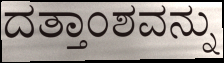
ದತ್ತಾಂಶವನ್ನು